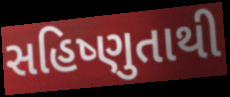
સહિષ્ણુતાથી